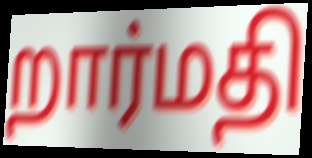
றார்மதி